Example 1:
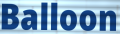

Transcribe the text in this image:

Balloon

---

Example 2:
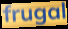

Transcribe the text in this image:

frugal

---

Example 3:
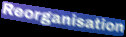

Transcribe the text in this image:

Reorganisation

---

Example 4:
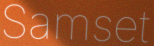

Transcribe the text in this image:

Samset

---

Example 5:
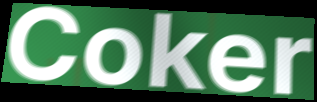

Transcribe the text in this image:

Coker